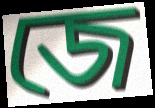
জে